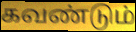
கவண்டும்